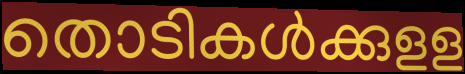
തൊടികൾക്കുളള